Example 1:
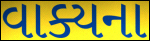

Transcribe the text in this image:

વાક્યના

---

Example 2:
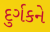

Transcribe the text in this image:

દુર્ગકને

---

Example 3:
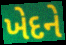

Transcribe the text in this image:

ખેદને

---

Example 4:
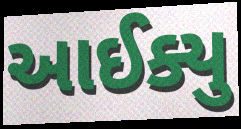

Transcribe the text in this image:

આઈક્યુ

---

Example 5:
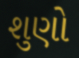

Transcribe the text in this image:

શુણો